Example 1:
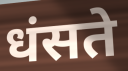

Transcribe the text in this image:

धंसते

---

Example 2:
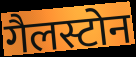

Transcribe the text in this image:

गैलस्टोन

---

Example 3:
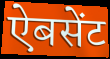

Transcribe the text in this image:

ऐबसेंट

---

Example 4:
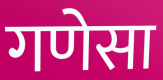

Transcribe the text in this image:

गणेसा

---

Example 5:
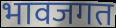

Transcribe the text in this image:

भावजगत